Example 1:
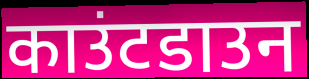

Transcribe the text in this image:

काउंटडाउन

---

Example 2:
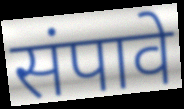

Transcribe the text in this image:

संपावे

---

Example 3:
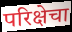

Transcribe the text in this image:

परिक्षेचा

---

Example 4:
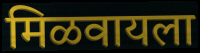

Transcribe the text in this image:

मिळवायला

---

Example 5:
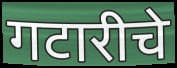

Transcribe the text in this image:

गटारीचे